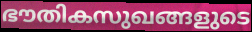
ഭൗതികസുഖങ്ങളുടെ